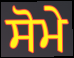
ਸੋਮੇ